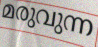
മരുവുന്ന